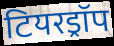
टियरड्रॉप